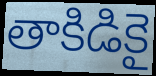
తాకిడికై